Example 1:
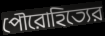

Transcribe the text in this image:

পৌরোহিত্যের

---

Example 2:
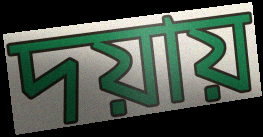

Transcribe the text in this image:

দয়ায়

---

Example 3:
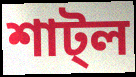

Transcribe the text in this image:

শাট্ল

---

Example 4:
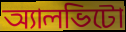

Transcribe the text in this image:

অ্যালভিটো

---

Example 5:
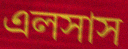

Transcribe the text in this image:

এলসাস